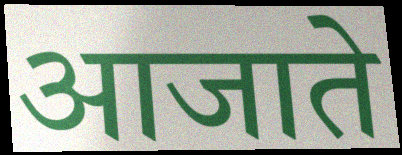
आजाते